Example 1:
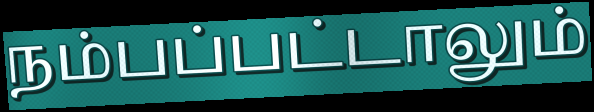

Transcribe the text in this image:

நம்பப்பட்டாலும்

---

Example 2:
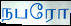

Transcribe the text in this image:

நபரோ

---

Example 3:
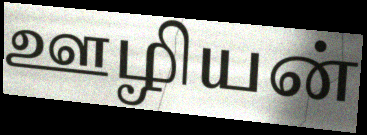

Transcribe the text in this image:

ஊழியன்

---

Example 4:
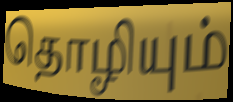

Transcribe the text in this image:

தொழியும்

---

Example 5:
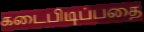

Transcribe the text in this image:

கடைபிடிப்பதை